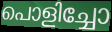
പൊളിച്ചോ